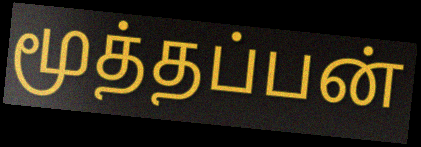
மூத்தப்பன்